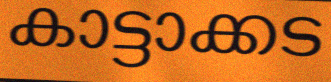
കാട്ടാക്കട